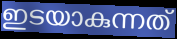
ഇടയാകുന്നത്